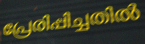
പ്രേരിപ്പിച്ചതിൽ